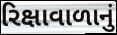
રિક્ષાવાળાનું